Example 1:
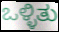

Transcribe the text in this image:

ಒಳ್ಳಿತು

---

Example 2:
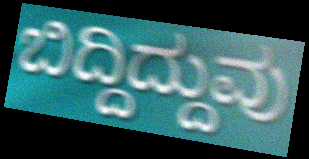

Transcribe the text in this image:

ಬಿದ್ದಿದ್ದುವು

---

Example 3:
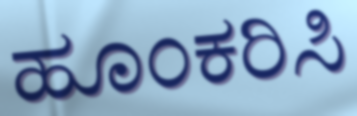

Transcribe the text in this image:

ಹೂಂಕರಿಸಿ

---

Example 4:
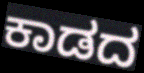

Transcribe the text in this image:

ಕಾಡದ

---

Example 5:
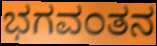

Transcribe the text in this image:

ಭಗವಂತನ